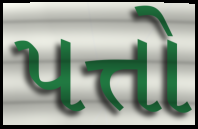
પત્તો